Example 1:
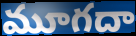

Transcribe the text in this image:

మూగదా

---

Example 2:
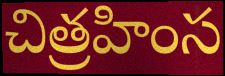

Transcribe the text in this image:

చిత్రహింస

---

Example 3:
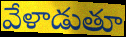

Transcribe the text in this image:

వేళాడుతూ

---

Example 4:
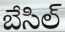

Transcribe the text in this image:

బేసిల్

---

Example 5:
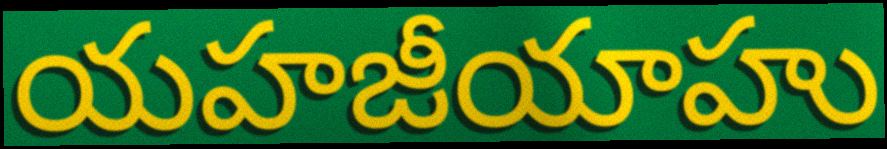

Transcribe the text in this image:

యహజీయాహు